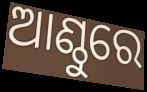
ଆଣ୍ଠୁରେ